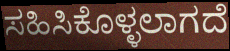
ಸಹಿಸಿಕೊಳ್ಳಲಾಗದೆ